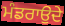
ਮੰਡਰਾਉਦੇ